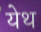
येथ